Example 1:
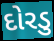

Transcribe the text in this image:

દોરડુ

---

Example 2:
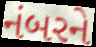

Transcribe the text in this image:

નંબરને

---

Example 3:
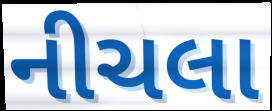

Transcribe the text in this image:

નીચલા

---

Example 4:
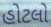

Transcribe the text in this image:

હોટલો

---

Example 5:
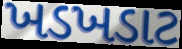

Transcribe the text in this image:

ખડખડાટ